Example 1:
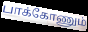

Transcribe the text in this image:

பாக்கோணும்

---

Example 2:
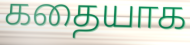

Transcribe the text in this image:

கதையாக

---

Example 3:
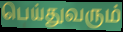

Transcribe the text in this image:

பெய்துவரும்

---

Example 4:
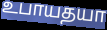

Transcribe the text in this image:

உபாயதயா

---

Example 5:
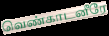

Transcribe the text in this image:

வெண்காடனீரே